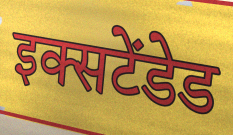
इक्सटेंडेड